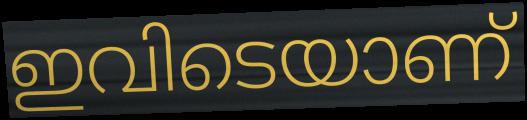
ഇവിടെയാണ്